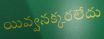
యివ్వనక్కరలేదు